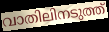
വാതിലിനടുത്ത്